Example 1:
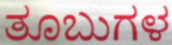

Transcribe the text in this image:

ತೂಬುಗಳ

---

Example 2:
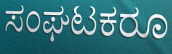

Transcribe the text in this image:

ಸಂಘಟಕರೂ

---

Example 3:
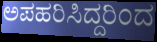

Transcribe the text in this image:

ಅಪಹರಿಸಿದ್ದರಿಂದ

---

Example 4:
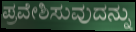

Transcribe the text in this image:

ಪ್ರವೇಶಿಸುವುದನ್ನು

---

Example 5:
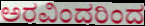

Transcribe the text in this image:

ಅರವಿಂದರಿಂದ